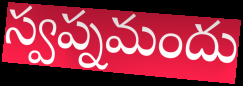
స్వప్నమందు